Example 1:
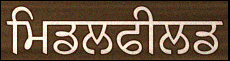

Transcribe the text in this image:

ਮਿਡਲਫੀਲਡ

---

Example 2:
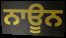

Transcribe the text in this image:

ਨਾਊਨ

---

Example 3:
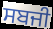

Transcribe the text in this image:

ਸਬਜੀ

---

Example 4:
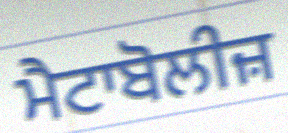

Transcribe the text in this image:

ਮੈਟਾਬੋਲੀਜ਼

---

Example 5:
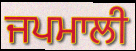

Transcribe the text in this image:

ਜਪਮਾਲੀ